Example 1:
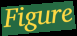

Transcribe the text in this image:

Figure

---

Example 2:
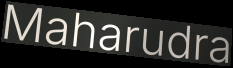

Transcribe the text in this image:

Maharudra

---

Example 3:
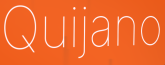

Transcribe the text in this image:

Quijano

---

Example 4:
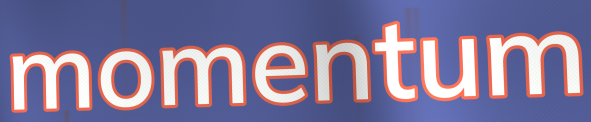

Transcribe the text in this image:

momentum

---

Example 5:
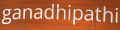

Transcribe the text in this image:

ganadhipathi